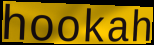
hookah